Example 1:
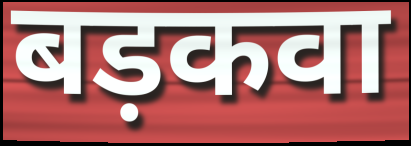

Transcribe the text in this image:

बड़कवा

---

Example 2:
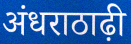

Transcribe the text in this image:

अंधराठाढ़ी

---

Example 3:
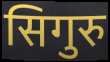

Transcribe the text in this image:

सिगुरु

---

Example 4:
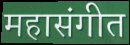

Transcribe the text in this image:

महासंगीत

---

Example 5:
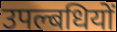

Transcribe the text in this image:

उपल्बधियों